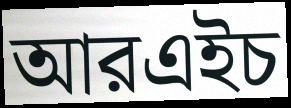
আরএইচ